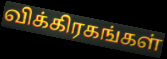
விக்கிரகங்கள்